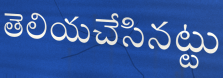
తెలియచేసినట్టు